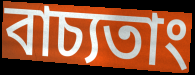
বাচ্যতাং